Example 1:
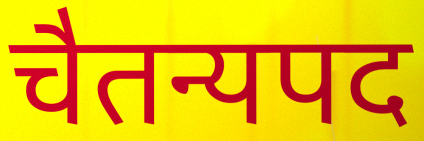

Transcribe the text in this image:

चैतन्यपद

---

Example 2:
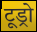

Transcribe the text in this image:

टूड्रो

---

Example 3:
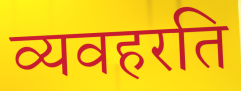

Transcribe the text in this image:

व्यवहरति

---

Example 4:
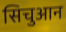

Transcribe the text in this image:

सिचुआन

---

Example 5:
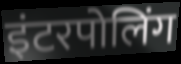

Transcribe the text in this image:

इंटरपोलिंग